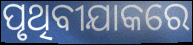
ପୃଥିବୀଯାକରେ